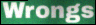
Wrongs